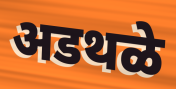
अडथळे